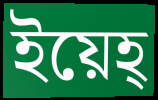
ইয়েহ্